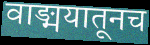
वाङ्मयातूनच